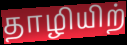
தாழியிற்